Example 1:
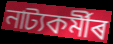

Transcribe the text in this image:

নাট্যকৰ্মীৰ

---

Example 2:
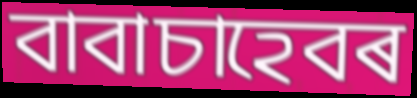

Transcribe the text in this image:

বাবাচাহেবৰ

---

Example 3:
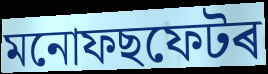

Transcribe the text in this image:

মনোফছফেটৰ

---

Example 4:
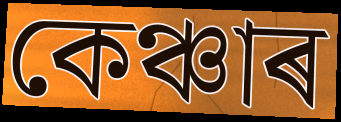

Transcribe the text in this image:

কেঞ্চাৰ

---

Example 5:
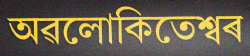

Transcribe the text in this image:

অৱলোকিতেশ্বৰ